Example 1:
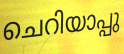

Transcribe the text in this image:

ചെറിയാപ്പു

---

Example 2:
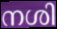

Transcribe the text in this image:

നശി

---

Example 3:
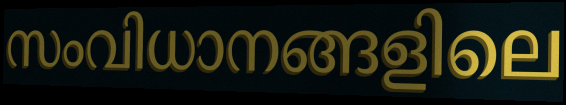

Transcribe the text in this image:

സംവിധാനങ്ങളിലെ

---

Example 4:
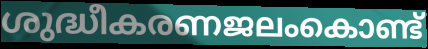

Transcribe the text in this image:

ശുദ്ധീകരണജലംകൊണ്ട്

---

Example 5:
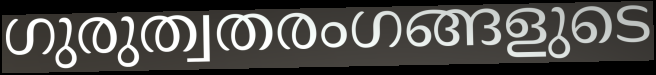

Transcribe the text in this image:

ഗുരുത്വതരംഗങ്ങളുടെ